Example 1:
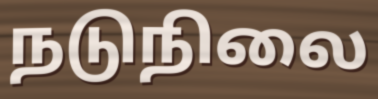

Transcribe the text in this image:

நடுநிலை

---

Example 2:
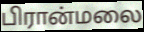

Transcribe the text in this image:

பிரான்மலை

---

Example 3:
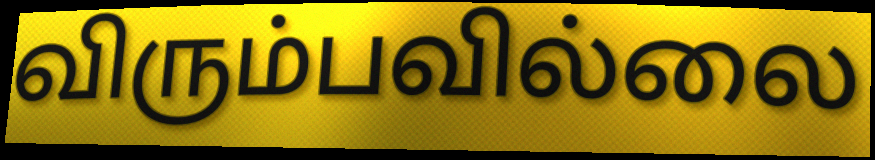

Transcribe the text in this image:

விரும்பவில்லை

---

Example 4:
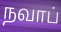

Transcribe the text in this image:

நவாப்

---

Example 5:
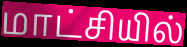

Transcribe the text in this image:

மாட்சியில்